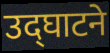
उद्घाटने